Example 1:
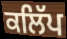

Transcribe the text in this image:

ਕਲਿੱਪ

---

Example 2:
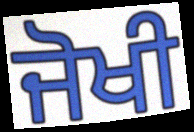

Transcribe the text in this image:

ਜੋਖੀ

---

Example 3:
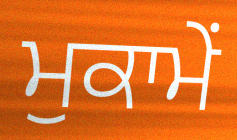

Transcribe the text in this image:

ਮੁਕਾਮੇਂ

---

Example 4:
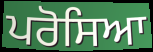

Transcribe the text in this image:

ਪਰੋਸਿਆ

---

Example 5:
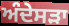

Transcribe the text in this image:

ਅੰਦੇਸੜਾ